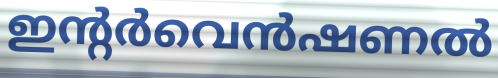
ഇന്റർവെൻഷണൽ